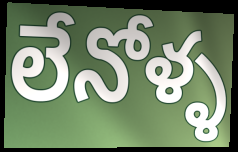
లేనోళ్ళ